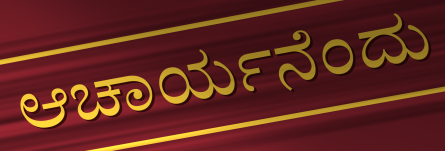
ಆಚಾರ್ಯನೆಂದು